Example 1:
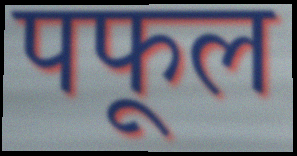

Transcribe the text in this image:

पफूल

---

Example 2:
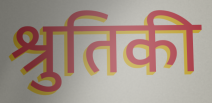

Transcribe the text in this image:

श्रुतिकी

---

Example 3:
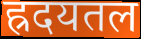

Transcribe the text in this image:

ह्रदयतल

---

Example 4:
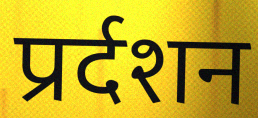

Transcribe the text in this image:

प्रर्दशन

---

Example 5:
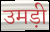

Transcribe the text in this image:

उमड़ी